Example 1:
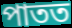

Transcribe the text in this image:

পাতত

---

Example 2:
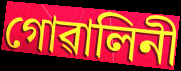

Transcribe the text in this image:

গোৱালিনী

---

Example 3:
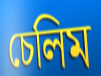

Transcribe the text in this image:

চেলিম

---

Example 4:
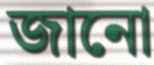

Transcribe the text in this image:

জানো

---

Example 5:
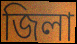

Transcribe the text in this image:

জিলা